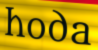
hoda